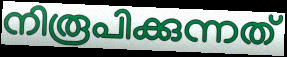
നിരൂപിക്കുന്നത്